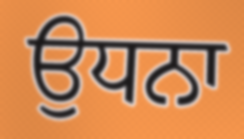
ਉਧਨਾ